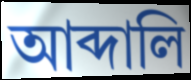
আব্দালি